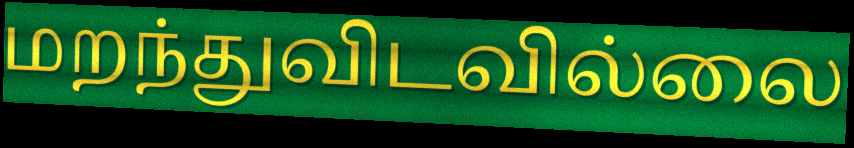
மறந்துவிடவில்லை